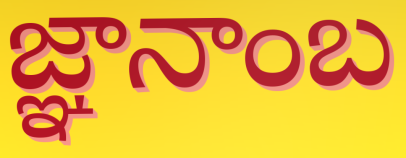
జ్ఞానాంబ